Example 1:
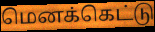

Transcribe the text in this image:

மெனக்கெட்டு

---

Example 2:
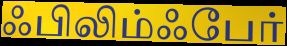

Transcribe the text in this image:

ஃபிலிம்ஃபேர்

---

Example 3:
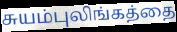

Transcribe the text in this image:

சுயம்புலிங்கத்தை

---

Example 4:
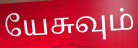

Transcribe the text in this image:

யேசுவும்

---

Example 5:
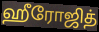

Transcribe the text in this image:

ஹீரோஜித்